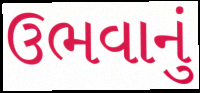
ઉભવાનું